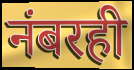
नंबरही